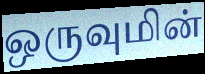
ஒருவுமின்